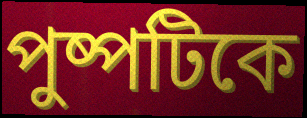
পুষ্পটিকে